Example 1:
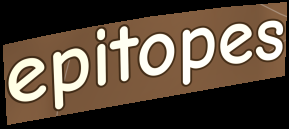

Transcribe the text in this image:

epitopes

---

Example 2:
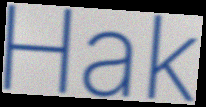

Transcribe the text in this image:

Hak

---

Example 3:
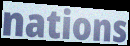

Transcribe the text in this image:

nations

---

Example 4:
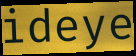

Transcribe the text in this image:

ideye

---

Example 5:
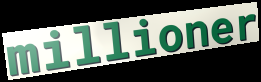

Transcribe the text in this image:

millioner